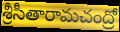
శ్రీసీతారామచంద్రో